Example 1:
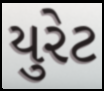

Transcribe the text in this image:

યુરેટ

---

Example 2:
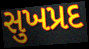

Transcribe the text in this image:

સુખપ્રદ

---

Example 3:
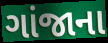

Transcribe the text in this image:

ગાંજાના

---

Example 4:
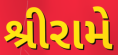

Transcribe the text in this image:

શ્રીરામે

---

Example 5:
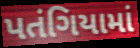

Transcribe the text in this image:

પતંગિયામાં